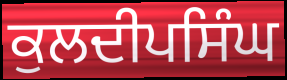
ਕੁਲਦੀਪਸਿੰਘ